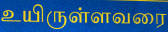
உயிருள்ளவரை